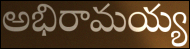
అభిరామయ్య